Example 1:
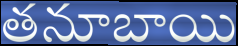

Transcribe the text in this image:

తనూబాయి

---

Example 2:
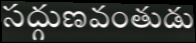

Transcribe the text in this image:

సద్గుణవంతుడు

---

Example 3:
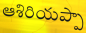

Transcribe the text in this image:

ఆశిరియప్పా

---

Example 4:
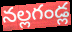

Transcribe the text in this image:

నల్లగండ్ల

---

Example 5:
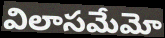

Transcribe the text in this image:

విలాసమేమో